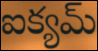
ఐక్యమ్